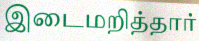
இடைமறித்தார்